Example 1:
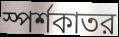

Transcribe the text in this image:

স্পর্শকাতর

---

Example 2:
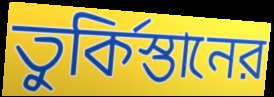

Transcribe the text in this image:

তুর্কিস্তানের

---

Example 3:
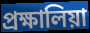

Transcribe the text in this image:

প্রক্ষালিয়া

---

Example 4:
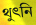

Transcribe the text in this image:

থুৎনি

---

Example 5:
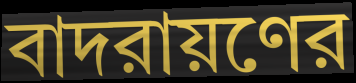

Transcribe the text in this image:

বাদরায়ণের